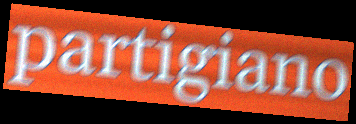
partigiano